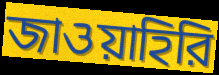
জাওয়াহিরি